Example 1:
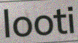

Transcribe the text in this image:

looti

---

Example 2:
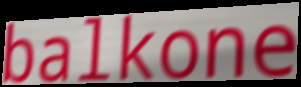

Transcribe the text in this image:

balkone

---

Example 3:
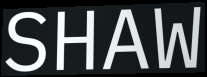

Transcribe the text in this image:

SHAW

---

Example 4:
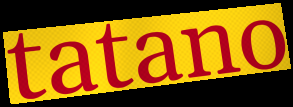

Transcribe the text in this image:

tatano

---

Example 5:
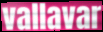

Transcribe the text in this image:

vallavar